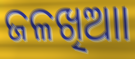
ଜଳଖିଆା